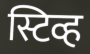
स्टिव्ह